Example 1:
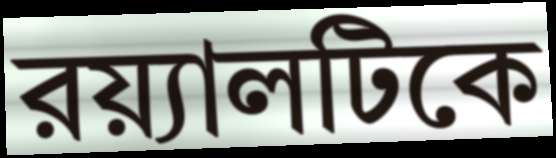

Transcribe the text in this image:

রয়্যালটিকে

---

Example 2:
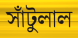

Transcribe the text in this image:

সাঁটুলাল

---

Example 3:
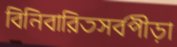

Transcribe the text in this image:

বিনিবারিতসর্বপীড়া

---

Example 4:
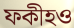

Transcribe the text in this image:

ফকীহও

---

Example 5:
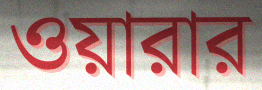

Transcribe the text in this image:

ওয়ারার